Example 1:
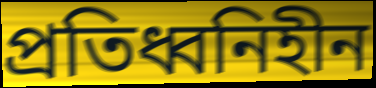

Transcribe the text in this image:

প্রতিধ্বনিহীন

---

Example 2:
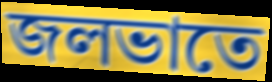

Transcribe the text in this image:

জলভাতে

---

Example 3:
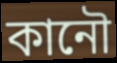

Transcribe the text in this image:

কানৌ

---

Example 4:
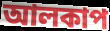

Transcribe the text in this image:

আলকাপ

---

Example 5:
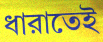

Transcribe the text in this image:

ধারাতেই